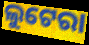
ଲୁଟେରା